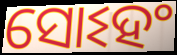
ସୋଽହଂ